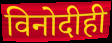
विनोदीही